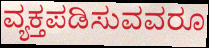
ವ್ಯಕ್ತಪಡಿಸುವವರೂ